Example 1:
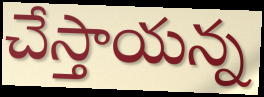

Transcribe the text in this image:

చేస్తాయన్న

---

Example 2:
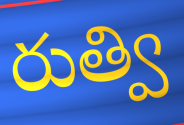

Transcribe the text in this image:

రుత్వి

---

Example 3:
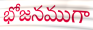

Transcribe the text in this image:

భోజనముగా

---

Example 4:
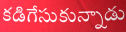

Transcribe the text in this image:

కడిగేసుకున్నాడు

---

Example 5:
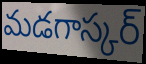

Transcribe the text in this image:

మడగాస్కర్